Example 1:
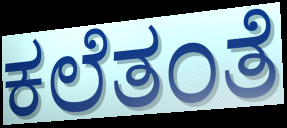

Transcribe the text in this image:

ಕಲೆತಂತೆ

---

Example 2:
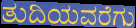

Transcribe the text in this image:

ತುದಿಯವರೆಗು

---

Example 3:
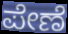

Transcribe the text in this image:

ಪೇಣೆ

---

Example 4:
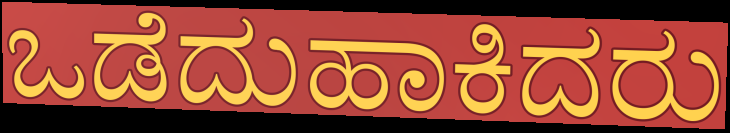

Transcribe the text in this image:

ಒಡೆದುಹಾಕಿದರು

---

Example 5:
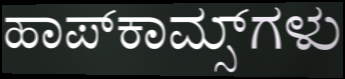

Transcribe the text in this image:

ಹಾಪ್‌ಕಾಮ್ಸ್‌ಗಳು